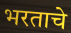
भरताचे